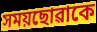
সময়ছোৱাকে